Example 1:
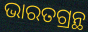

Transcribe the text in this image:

ଭାରତଗ୍ରନ୍ଥ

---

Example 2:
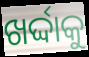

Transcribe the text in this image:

ଖର୍ଦ୍ଦାକୁ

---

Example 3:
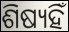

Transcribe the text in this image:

ଶିଷ୍ୟହିଁ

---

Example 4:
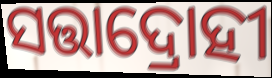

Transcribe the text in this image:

ସତ୍ତାଦ୍ରୋହୀ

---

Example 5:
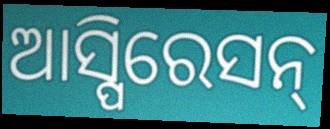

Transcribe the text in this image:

ଆସ୍ପିରେସନ୍